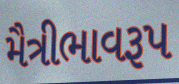
મૈત્રીભાવરૂપ